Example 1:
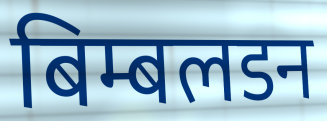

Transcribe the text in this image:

बिम्बलडन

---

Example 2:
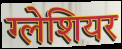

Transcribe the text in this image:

ग्‍लेशियर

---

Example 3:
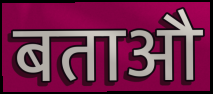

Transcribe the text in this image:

बताऔ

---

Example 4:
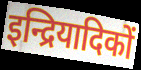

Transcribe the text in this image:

इन्द्रियादिकों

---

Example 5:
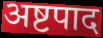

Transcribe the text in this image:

अष्टपाद